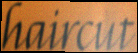
haircut